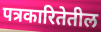
पत्रकारितेतील